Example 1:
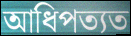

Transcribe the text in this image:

আধিপত্যত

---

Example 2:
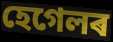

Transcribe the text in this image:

হেগেলৰ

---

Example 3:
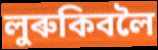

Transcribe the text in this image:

লুৰুকিবলৈ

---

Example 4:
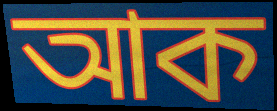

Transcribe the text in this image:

আক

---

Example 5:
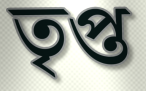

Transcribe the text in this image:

তৃপ্ত